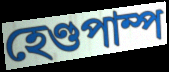
হেণ্ডপাম্প